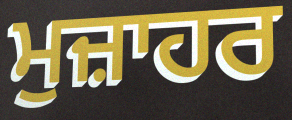
ਮੁਜ਼ਾਹਰ